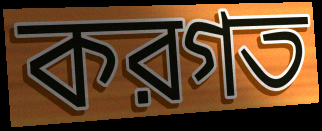
করগত